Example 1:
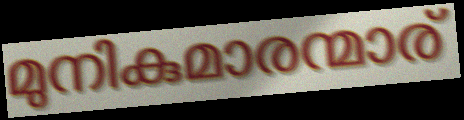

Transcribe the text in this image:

മുനികുമാരന്മാര്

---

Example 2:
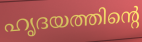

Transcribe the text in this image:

ഹൃദയത്തിന്റെ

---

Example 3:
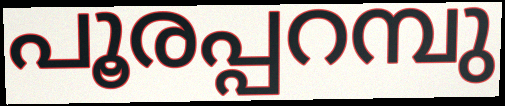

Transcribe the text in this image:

പൂരപ്പറമ്പു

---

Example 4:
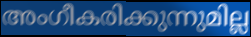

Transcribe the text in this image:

അംഗീകരിക്കുന്നുമില്ല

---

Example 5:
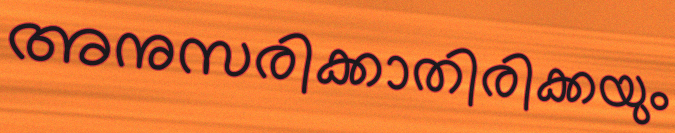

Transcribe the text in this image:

അനുസരിക്കാതിരിക്കയും